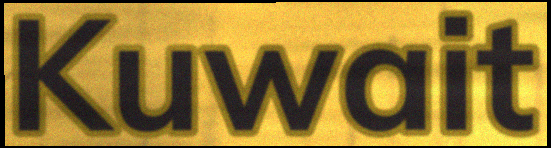
Kuwait